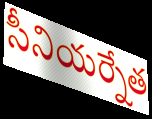
సీనియర్నేత